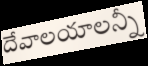
దేవాలయాలన్నీ